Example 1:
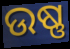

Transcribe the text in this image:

ଉଷ୍ଣ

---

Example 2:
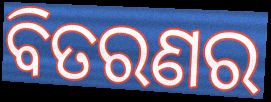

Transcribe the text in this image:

ବିତରଣର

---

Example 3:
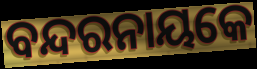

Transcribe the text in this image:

ବନ୍ଦରନାୟକେ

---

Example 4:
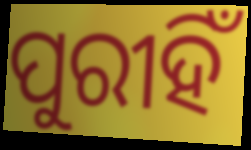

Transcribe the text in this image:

ପୁରୀହିଁ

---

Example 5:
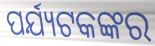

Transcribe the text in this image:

ପର୍ଯ୍ୟଟକଙ୍କର